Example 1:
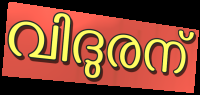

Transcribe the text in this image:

വിദുരന്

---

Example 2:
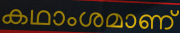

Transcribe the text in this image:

കഥാംശമാണ്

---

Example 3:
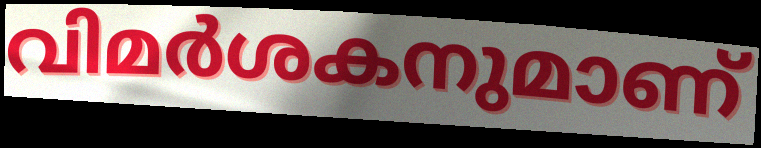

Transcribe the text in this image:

വിമർശകനുമാണ്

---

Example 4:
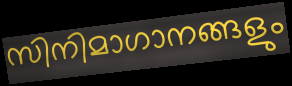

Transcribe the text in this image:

സിനിമാഗാനങ്ങളും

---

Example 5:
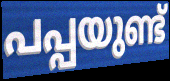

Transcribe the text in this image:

പപ്പയുണ്ട്